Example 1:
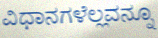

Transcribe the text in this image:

ವಿಧಾನಗಳೆಲ್ಲವನ್ನೂ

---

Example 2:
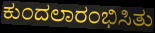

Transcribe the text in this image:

ಕುಂದಲಾರಂಭಿಸಿತು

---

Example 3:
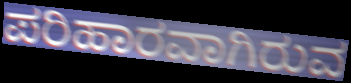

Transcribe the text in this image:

ಪರಿಹಾರವಾಗಿರುವ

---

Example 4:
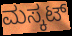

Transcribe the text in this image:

ಮಸ್ಕಟ್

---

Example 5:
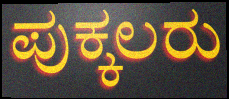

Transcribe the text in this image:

ಪುಕ್ಕಲರು